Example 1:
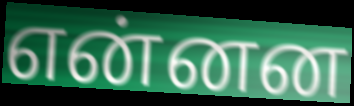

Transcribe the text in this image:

என்னன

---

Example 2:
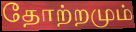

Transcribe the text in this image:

தோற்றமும்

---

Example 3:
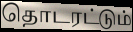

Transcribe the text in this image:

தொடரட்டும்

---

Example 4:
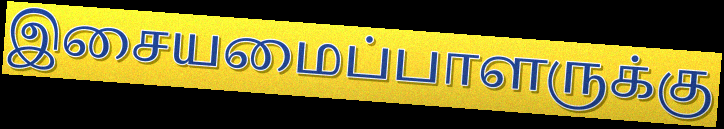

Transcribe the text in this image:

இசையமைப்பாளருக்கு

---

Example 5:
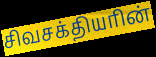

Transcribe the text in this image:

சிவசக்தியரின்